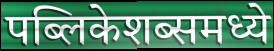
पब्लिकेशब्समध्ये